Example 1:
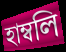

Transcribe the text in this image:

হাম্বলি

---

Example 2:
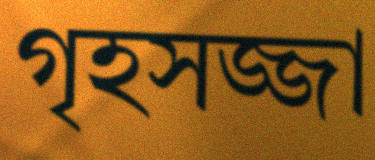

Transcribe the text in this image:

গৃহসজ্জা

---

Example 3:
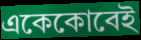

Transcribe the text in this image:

একেকোবেই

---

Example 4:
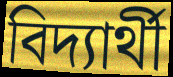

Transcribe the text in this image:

বিদ্যাৰ্থী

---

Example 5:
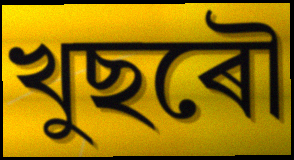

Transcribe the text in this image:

খুছৰৌ